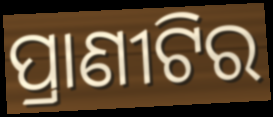
ପ୍ରାଣୀଟିର